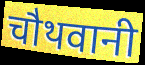
चौथवानी